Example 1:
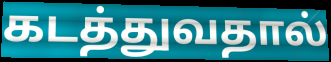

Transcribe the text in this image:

கடத்துவதால்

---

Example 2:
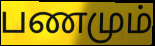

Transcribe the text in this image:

பணமும்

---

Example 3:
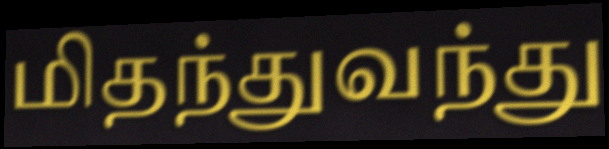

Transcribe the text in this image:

மிதந்துவந்து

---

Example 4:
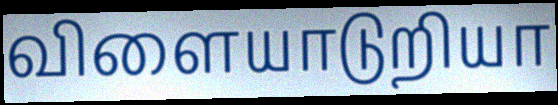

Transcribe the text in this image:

விளையாடுறியா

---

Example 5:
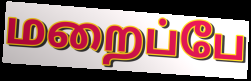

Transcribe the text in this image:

மறைப்பே